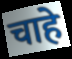
चाहे